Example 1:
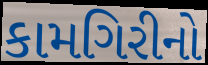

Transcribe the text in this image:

કામગિરીનો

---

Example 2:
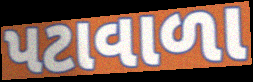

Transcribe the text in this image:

પટાવાળા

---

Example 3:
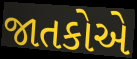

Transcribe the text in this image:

જાતકોએ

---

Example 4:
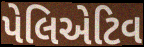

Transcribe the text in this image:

પેલિએટિવ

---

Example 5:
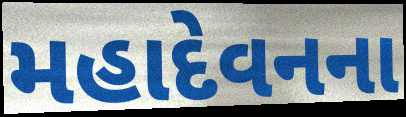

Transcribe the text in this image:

મહાદેવનના